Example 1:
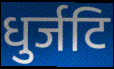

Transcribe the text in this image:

धुर्जटि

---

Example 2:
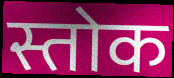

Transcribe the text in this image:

स्तोक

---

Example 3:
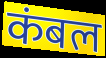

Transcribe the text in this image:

कंबल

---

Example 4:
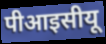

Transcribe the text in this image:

पीआइसीयू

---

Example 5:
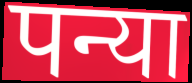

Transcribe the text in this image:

पन्या